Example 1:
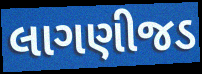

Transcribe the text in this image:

લાગણીજડ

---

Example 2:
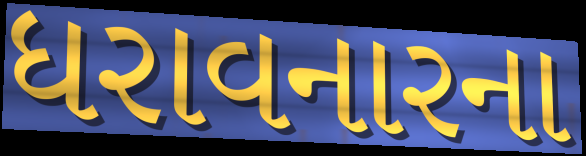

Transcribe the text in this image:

ધરાવનારના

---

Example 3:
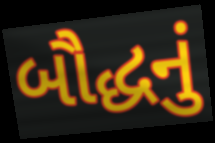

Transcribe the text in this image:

બૌદ્ધનું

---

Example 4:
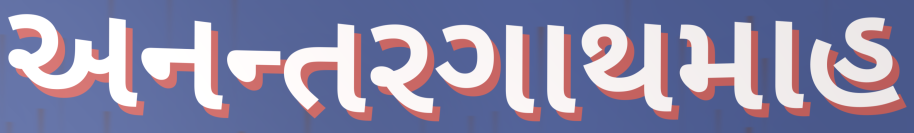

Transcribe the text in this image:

અનન્તરગાથમાહ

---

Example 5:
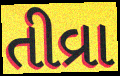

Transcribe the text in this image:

તીવ્રા